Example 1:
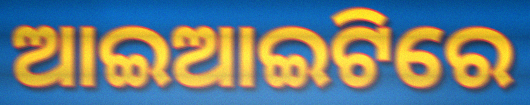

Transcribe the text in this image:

ଆଇଆଇଟିରେ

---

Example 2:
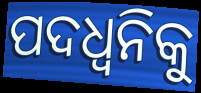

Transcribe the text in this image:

ପଦଧ୍ୱନିକୁ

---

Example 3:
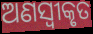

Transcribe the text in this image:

ଅଣସ୍ୱୀକୃତ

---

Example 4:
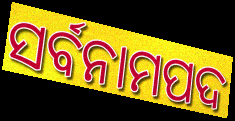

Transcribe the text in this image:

ସର୍ବନାମପଦ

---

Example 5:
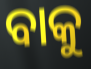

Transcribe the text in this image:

ବାକୁ